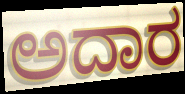
ಅದಾರ